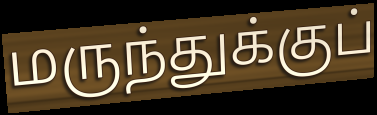
மருந்துக்குப்